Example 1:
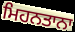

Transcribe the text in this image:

ਮਿਹਨਤਾਨਾ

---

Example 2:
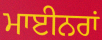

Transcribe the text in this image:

ਮਾਈਨਰਾਂ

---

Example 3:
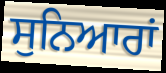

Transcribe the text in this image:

ਸੁਨਿਆਰਾਂ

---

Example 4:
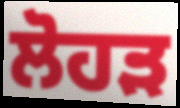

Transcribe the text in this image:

ਲੋਹੜ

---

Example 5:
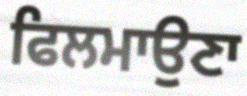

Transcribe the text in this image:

ਫਿਲਮਾਉਣਾ